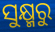
ସୁକ୍ଷ୍ମରୁ